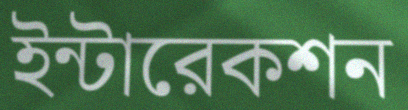
ইন্টারেকশন